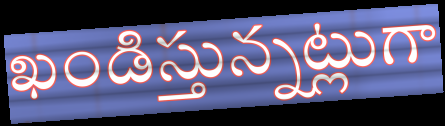
ఖండిస్తున్నట్లుగా